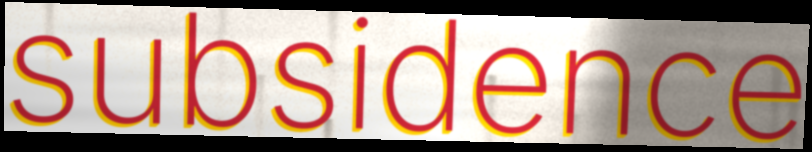
subsidence